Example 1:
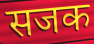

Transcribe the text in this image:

सजक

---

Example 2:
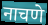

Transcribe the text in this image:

नाचणे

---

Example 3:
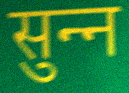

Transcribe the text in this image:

सुन्‍न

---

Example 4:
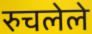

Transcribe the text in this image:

रुचलेले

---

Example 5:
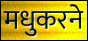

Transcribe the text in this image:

मधुकरने